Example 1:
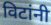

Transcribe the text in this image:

विटांनी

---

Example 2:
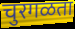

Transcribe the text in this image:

चुरगळता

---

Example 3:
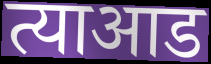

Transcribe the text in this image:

त्याआड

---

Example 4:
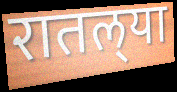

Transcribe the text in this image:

रातल्या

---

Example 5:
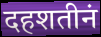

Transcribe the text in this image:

दहशतीनं